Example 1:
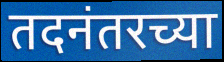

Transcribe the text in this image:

तदनंतरच्या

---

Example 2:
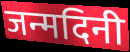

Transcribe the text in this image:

जन्मदिनी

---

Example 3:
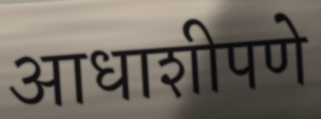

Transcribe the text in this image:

आधाशीपणे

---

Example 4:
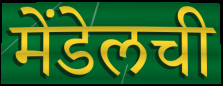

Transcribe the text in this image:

मेंडेलची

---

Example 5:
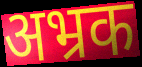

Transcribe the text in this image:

अभ्रक